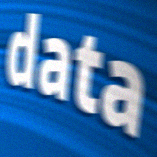
data